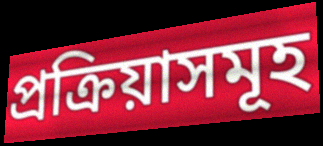
প্ৰক্ৰিয়াসমূহ